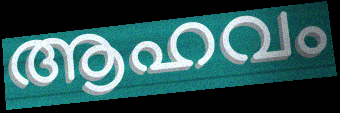
ആഹവം